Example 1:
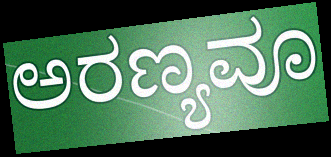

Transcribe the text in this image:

ಅರಣ್ಯವೂ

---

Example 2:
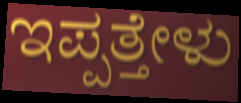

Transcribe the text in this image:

ಇಪ್ಪತ್ತೇಳು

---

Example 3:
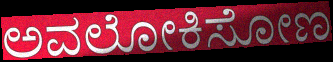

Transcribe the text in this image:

ಅವಲೋಕಿಸೋಣ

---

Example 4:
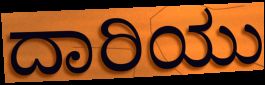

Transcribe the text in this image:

ದಾರಿಯು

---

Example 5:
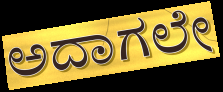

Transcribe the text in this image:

ಅದಾಗಲೇ